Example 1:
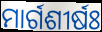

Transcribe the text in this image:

ମାର୍ଗଶୀର୍ଷଃ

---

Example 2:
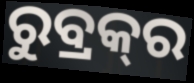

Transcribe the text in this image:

ରୁବ୍ରକ୍‍ର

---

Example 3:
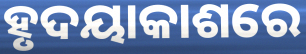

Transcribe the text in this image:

ହୃଦୟାକାଶରେ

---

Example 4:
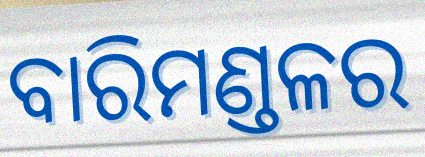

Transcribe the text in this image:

ବାରିମଣ୍ଡଳର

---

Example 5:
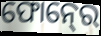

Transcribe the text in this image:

ଫୋନ୍‍ରେ